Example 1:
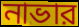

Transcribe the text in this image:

নাভার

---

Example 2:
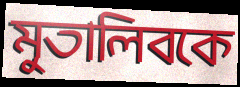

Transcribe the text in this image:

মুতালিবকে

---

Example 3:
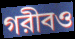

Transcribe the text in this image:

গরীবও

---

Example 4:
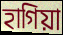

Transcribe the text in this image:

হাগিয়া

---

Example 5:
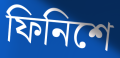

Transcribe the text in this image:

ফিনিশে